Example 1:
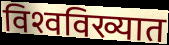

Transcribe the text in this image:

विश्वविख्यात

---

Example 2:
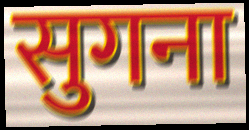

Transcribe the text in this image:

सुगना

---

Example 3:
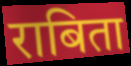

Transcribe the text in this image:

राबिता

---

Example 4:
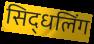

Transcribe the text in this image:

सिद्धलिंग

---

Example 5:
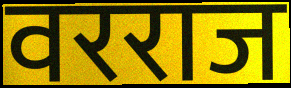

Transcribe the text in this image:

वरराज